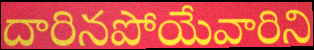
దారినపోయేవారిని